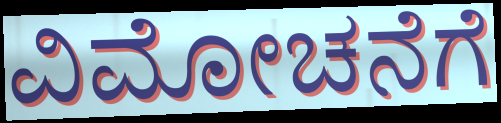
ವಿಮೋಚನೆಗೆ